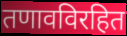
तणावविरहित